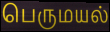
பெருமயல்